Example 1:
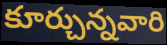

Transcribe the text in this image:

కూర్చున్నవారి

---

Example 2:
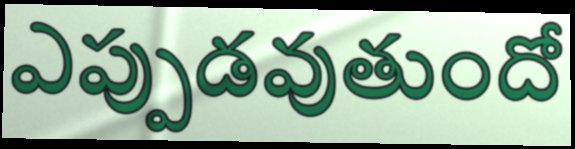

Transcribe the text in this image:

ఎప్పుడవుతుందో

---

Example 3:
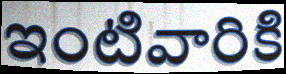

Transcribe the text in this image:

ఇంటివారికి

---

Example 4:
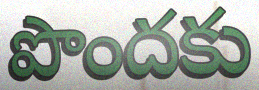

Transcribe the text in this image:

పొందకు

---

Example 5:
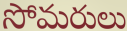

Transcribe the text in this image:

సోమరులు